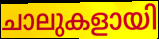
ചാലുകളായി